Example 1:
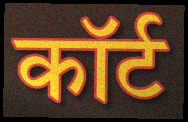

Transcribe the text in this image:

कॉर्ट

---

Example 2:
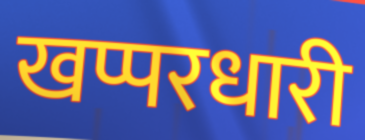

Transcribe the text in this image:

खप्परधारी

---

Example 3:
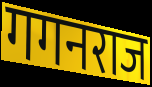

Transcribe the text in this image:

गगनराज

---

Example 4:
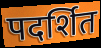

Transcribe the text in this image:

पदर्शित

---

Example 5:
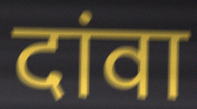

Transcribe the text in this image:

दांवा